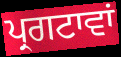
ਪ੍ਰਗਟਾਵਾਂ